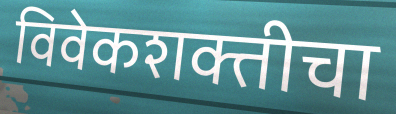
विवेकशक्तीचा